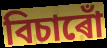
বিচাৰোঁ